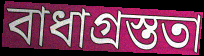
বাধাগ্ৰস্ততা